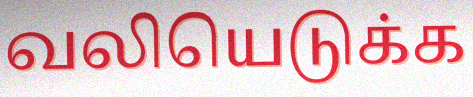
வலியெடுக்க